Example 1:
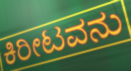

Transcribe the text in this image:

ಕಿರೀಟವನು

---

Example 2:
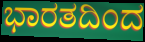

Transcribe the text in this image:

ಭಾರತದಿಂದ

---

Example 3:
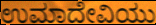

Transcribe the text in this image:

ಉಮಾದೇವಿಯು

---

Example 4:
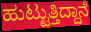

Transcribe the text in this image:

ಹುಟ್ಟುತ್ತಿದ್ದಾನೆ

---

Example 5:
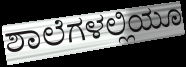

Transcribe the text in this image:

ಶಾಲೆಗಳಲ್ಲಿಯೂ